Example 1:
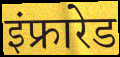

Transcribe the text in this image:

इंफ्रारेड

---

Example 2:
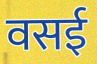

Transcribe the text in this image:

वसई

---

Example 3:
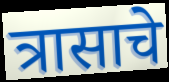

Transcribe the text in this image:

त्रासाचे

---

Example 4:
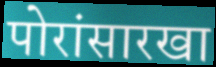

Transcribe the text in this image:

पोरांसारखा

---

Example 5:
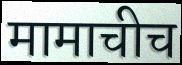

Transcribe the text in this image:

मामाचीच